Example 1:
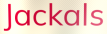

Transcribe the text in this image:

Jackals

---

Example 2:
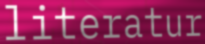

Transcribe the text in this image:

literatur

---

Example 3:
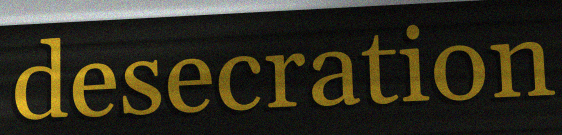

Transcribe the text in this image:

desecration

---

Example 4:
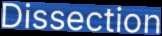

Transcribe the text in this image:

Dissection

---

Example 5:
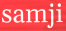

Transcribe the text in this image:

samji